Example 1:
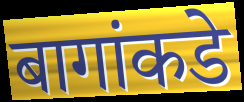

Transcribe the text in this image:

बागांकडे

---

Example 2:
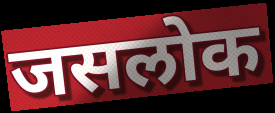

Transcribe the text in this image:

जसलोक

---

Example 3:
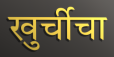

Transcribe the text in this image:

खुर्चीचा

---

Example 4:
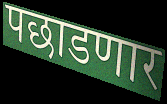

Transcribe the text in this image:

पछाडणार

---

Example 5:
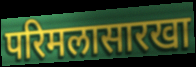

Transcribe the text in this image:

परिमलासारखा